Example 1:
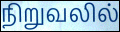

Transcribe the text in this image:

நிறுவலில்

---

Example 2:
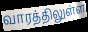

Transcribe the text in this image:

வாரத்திலுள்ள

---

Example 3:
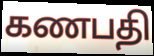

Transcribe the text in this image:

கணபதி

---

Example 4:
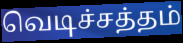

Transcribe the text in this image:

வெடிச்சத்தம்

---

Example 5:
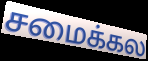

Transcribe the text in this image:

சமைக்கல